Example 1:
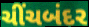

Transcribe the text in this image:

ચીંચબંદર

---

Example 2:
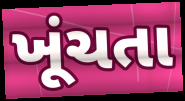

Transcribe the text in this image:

ખૂંચતા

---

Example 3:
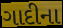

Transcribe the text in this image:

ગાદીના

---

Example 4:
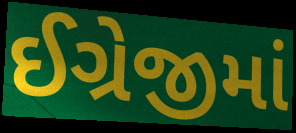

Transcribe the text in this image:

ઈગ્રેજીમાં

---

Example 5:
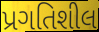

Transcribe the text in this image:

પ્રગતિશીલ